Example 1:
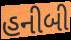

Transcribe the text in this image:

હનીબી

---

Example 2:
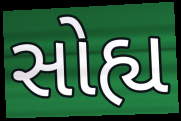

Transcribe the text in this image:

સોહ્ય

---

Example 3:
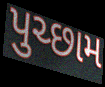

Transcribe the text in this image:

પુચ્છામ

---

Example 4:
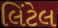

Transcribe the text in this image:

લિંટેલ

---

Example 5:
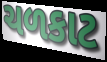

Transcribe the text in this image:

ચળકાટ